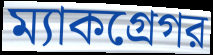
ম্যাকগ্রেগর